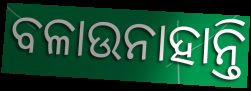
ବଳାଉନାହାନ୍ତି